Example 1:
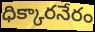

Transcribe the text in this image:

ధిక్కారనేరం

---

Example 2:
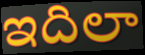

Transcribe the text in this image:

ఇదిలా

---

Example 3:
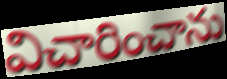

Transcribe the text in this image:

విచారించాను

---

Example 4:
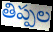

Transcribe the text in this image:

తిప్పల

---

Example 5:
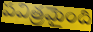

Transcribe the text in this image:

పవిత్రమైంది